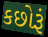
કછોરૂં